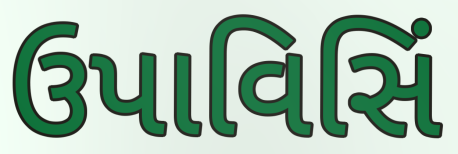
ઉપાવિસિં